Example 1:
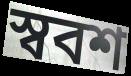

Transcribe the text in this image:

স্ববশ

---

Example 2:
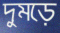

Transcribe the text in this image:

দুমড়ে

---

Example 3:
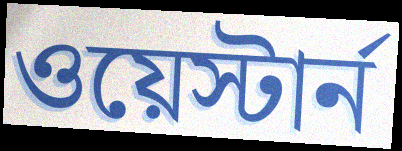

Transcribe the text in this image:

ওয়েস্টার্ন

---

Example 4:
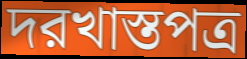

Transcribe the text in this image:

দরখাস্তপত্র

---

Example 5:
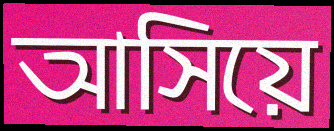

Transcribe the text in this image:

আসিয়ে